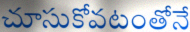
చూసుకోవటంతోనే